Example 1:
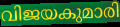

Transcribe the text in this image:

വിജയകുമാരി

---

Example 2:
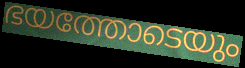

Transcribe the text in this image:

ഭയത്തോടെയും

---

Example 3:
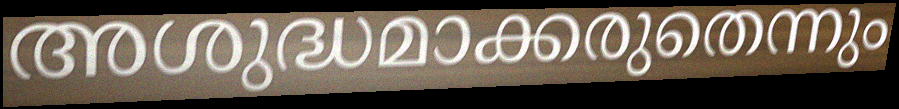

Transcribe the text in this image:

അശുദ്ധമാക്കരുതെന്നും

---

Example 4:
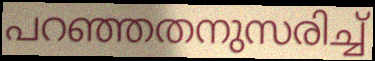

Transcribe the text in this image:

പറഞ്ഞതനുസരിച്ച്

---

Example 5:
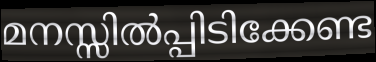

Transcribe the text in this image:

മനസ്സിൽപ്പിടിക്കേണ്ട